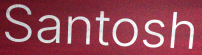
Santosh